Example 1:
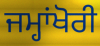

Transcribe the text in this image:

ਜਮ੍ਹਾਂਖੋਰੀ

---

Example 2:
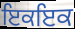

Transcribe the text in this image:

ਇਕਇਕ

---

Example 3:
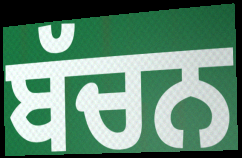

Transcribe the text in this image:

ਬੱਚਨ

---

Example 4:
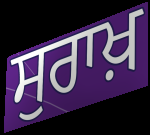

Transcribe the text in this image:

ਸੁਰਾਖ਼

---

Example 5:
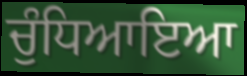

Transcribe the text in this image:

ਚੁੰਧਿਆਇਆ